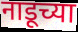
नाडूच्या